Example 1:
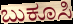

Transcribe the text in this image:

ಬುಕೂಸಿ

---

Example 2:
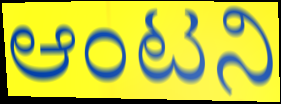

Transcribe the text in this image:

ಆಂಟನಿ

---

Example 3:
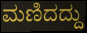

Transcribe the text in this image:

ಮಣಿದದ್ದು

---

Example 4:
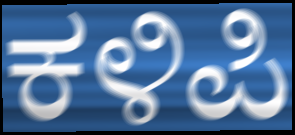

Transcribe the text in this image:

ಕಳಿಪಿ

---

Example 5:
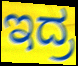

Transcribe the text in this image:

ಇದ್ರ